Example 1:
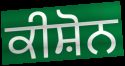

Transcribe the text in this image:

ਕੀਸ਼ੋਨ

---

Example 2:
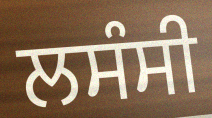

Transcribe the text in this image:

ਲਸੰਸੀ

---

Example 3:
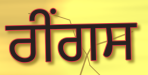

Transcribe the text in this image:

ਰੀਂਗਸ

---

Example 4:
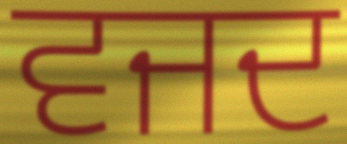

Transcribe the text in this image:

ਵਜਦ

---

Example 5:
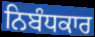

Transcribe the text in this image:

ਨਿਬੰਧਕਾਰ